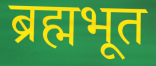
ब्रह्मभूत